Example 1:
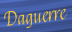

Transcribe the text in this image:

Daguerre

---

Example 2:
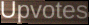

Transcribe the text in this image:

Upvotes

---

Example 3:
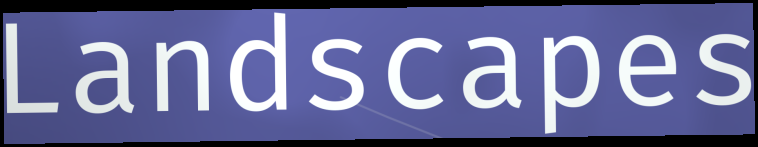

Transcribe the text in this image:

Landscapes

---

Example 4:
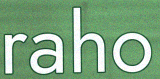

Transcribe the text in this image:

raho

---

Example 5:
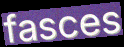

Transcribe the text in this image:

fasces